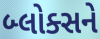
બ્લોક્સને